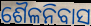
ଶୈଳନିବାସ